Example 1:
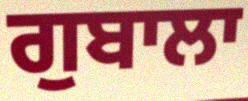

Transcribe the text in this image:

ਗੁਬਾਲਾ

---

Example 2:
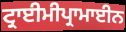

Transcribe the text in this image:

ਟ੍ਰਾਈਮੀਪ੍ਰਾਮਾਈਨ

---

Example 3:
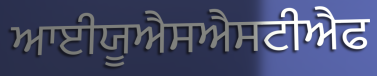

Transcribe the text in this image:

ਆਈਯੂਐਸਐਸਟੀਐਫ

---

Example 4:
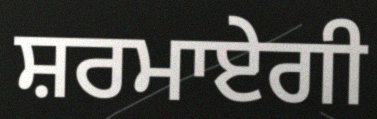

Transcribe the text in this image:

ਸ਼ਰਮਾਏਗੀ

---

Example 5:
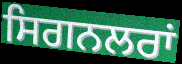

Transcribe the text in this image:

ਸਿਗਨਲਰਾਂ